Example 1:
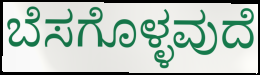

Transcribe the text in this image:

ಬೆಸಗೊಳ್ಳವುದೆ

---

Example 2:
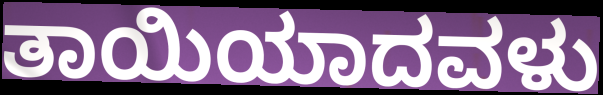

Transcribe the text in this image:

ತಾಯಿಯಾದವಳು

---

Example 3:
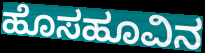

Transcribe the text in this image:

ಹೊಸಹೂವಿನ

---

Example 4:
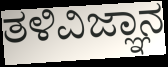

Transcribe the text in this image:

ತಳಿವಿಜ್ಞಾನ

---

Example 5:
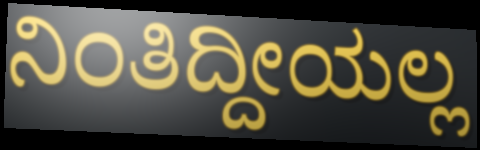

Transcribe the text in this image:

ನಿಂತಿದ್ದೀಯಲ್ಲ